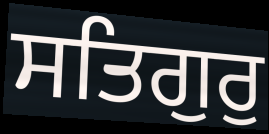
ਸਤਿਗੁਰੁ